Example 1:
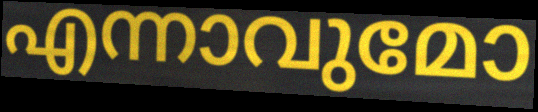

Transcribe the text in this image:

എന്നാവുമോ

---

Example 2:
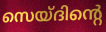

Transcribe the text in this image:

സെയ്ദിന്റെ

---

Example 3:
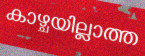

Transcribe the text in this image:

കാഴ്ചയില്ലാത്ത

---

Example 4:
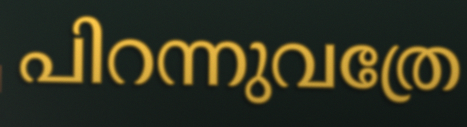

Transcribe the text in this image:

പിറന്നുവത്രേ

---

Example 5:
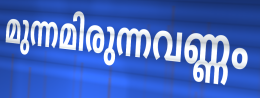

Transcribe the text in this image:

മുന്നമിരുന്നവണ്ണം